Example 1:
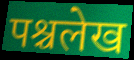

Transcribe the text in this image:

पश्चलेख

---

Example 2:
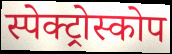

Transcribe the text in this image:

स्पेक्ट्रोस्कोप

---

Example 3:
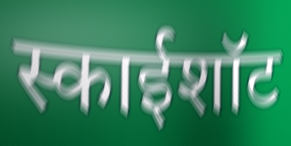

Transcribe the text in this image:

स्काईशॉट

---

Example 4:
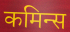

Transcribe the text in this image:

कमिन्स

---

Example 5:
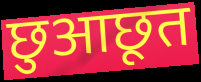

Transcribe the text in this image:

छुआछूत